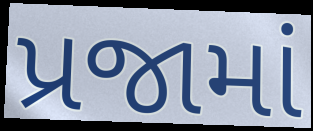
પ્રજામાં